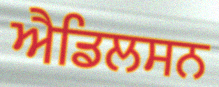
ਐਡਿਲਸਨ